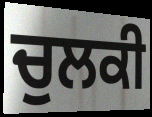
ਚੁਲਕੀ